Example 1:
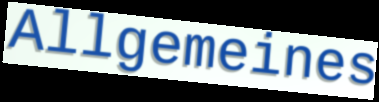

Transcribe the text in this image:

Allgemeines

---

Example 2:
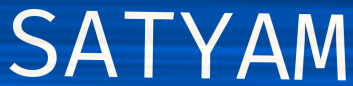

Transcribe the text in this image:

SATYAM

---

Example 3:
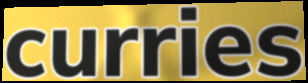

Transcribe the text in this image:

curries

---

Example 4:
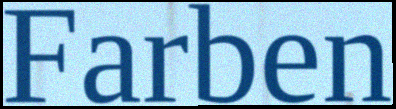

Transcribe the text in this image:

Farben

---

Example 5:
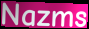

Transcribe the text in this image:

Nazms